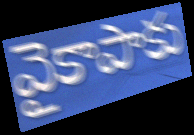
వైకాపాకు